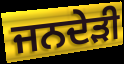
ਜਨਦੇੜੀ